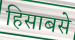
हिसाबसे